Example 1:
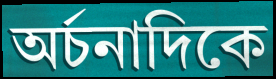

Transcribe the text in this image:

অর্চনাদিকে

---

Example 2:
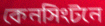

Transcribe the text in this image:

কেনসিংটনে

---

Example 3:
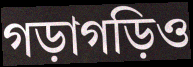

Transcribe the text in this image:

গড়াগড়িও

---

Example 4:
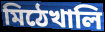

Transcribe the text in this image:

মিঠেখালি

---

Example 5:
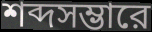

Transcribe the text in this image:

শব্দসম্ভারে